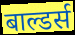
बाल्डर्स